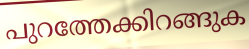
പുറത്തേക്കിറങ്ങുക